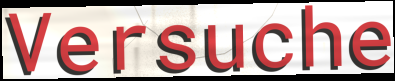
Versuche